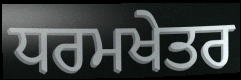
ਧਰਮਖੇਤਰ